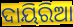
ଦାୟିରିଆ